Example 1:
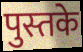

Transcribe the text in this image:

पुस्‍तके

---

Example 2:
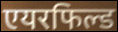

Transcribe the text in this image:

एयरफिल्ड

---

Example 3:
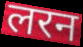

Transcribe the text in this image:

लरन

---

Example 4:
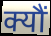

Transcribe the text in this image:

क्यौं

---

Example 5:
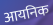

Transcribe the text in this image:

आयनिक